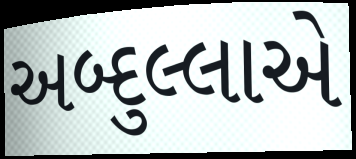
અબ્દુલ્લાએ